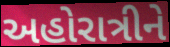
અહોરાત્રીને